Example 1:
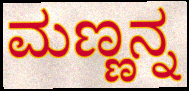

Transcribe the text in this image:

ಮಣ್ಣನ್ನ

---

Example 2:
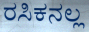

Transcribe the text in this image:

ರಸಿಕನಲ್ಲ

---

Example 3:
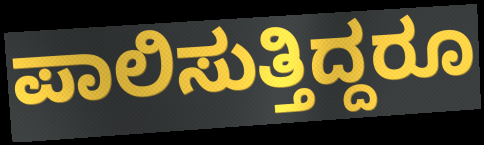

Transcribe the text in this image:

ಪಾಲಿಸುತ್ತಿದ್ದರೂ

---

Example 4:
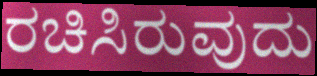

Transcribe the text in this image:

ರಚಿಸಿರುವುದು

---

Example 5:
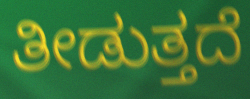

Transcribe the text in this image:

ತೀಡುತ್ತದೆ